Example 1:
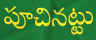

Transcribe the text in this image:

పూచినట్టు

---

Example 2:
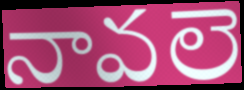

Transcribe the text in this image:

నావలె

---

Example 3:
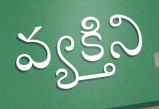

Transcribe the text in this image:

వ్యక్తిని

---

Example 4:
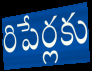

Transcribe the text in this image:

రిపేర్లకు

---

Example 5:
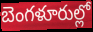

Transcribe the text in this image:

బెంగళూరుల్లో